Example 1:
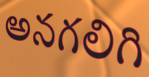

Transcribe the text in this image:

అనగలిగి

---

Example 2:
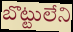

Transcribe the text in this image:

బొట్టులేని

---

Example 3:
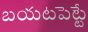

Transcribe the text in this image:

బయటపెట్టే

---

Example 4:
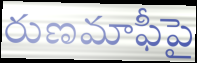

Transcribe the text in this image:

రుణమాఫీపై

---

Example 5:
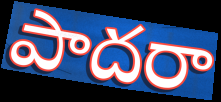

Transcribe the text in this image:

పాదరా